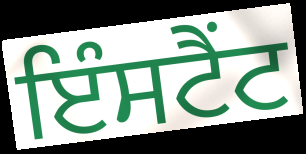
ਇੰਸਟੈਂਟ